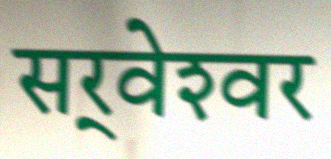
सर्वेश्वर